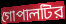
গোপালটির